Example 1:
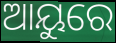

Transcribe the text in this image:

ଆୟୁରେ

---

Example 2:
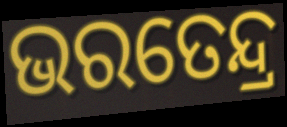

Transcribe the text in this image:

ଭରତେନ୍ଦ୍ର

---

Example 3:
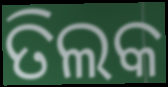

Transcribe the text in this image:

ତିଲକ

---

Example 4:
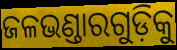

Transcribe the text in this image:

ଜଳଭଣ୍ଡାରଗୁଡ଼ିକୁ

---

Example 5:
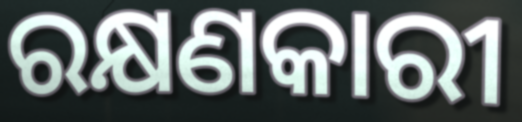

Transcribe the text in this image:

ରକ୍ଷଣକାରୀ